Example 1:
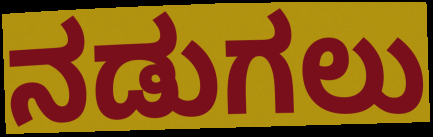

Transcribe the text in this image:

ನಡುಗಲು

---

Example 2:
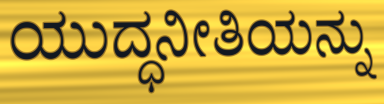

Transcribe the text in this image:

ಯುದ್ಧನೀತಿಯನ್ನು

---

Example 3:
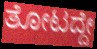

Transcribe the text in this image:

ತೋಟದ್ದೇ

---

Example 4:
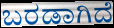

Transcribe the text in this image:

ಬರಡಾಗಿದೆ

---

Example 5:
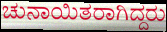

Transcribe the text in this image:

ಚುನಾಯಿತರಾಗಿದ್ದರು